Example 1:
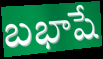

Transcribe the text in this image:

బభాషే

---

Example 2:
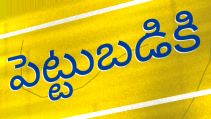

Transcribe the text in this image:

పెట్టుబడికి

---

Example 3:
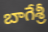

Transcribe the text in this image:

బాగేశ్రీ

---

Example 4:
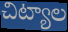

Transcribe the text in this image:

చిట్యాల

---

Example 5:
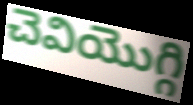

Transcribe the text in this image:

చెవియొగ్గి